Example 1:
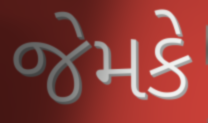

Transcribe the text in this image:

જેમકે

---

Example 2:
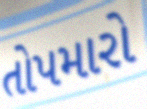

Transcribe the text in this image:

તોપમારો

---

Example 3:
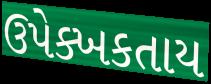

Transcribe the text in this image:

ઉપેક્ખકતાય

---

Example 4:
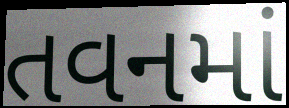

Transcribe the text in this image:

તવનમાં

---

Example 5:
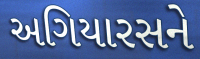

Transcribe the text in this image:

અગિયારસને